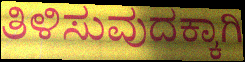
ತಿಳಿಸುವುದಕ್ಕಾಗಿ